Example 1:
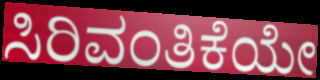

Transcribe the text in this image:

ಸಿರಿವಂತಿಕೆಯೇ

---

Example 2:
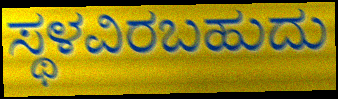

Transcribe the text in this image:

ಸ್ಥಳವಿರಬಹುದು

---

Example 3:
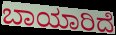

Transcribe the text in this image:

ಬಾಯಾರಿದೆ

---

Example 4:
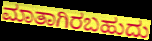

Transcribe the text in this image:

ಮಾತಾಗಿರಬಹುದು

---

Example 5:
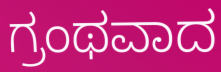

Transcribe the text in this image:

ಗ್ರಂಥವಾದ